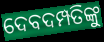
ଦେବଦମ୍ପତିଙ୍କୁ